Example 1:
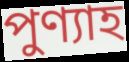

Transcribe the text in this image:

পুণ্যাহ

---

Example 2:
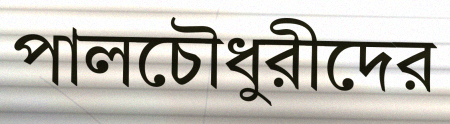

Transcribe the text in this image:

পালচৌধুরীদের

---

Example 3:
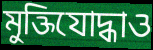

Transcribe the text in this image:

মুক্তিযোদ্ধাও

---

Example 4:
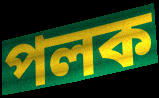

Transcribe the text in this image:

পলক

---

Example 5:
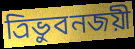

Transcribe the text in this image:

ত্রিভুবনজয়ী